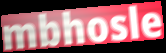
mbhosle